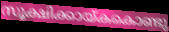
സൂക്ഷിക്കായ്കകൊണ്ടു